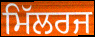
ਮਿੱਲਰਜ